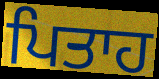
ਪਿਤਾਹ